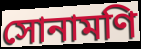
সোনামণি